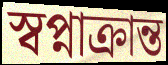
স্বপ্নাক্রান্ত